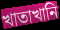
খাতাখানি